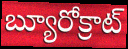
బ్యూరోక్రాట్